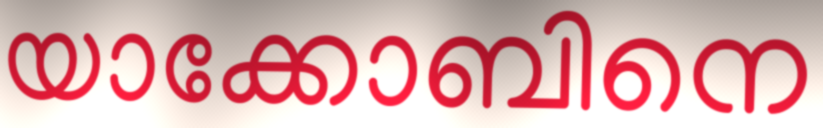
യാക്കോബിനെ